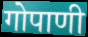
गोपाणी